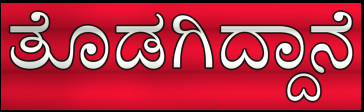
ತೊಡಗಿದ್ದಾನೆ